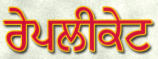
ਰੇਪਲੀਕੇਟ